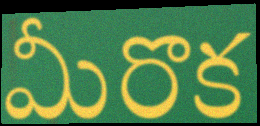
మీరొక